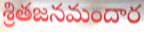
శ్రితజనమందార